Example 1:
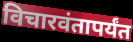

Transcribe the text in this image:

विचारवंतापर्यंत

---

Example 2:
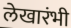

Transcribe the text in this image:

लेखारंभी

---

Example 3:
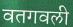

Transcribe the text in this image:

वतगवली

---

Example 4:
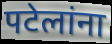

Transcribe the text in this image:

पटेलांना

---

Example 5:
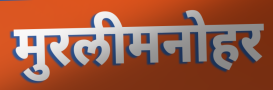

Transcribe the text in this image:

मुरलीमनोहर